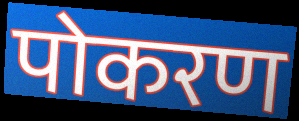
पोकरण